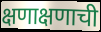
क्षणाक्षणाची